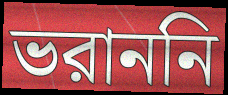
ভরাননি